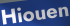
Hiouen